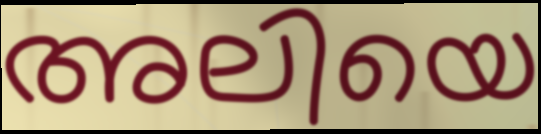
അലിയെ